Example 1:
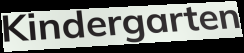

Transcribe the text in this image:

Kindergarten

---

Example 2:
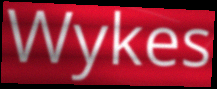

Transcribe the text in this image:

Wykes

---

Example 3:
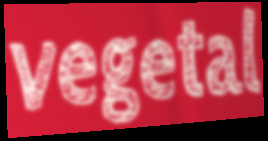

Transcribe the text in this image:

vegetal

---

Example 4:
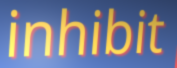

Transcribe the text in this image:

inhibit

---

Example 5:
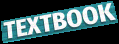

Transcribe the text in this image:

TEXTBOOK